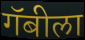
गॅबीला